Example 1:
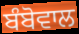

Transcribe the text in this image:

ਬੰਬੋਵਾਲ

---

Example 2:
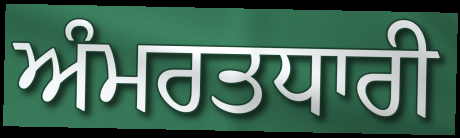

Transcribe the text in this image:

ਅੰਮਰਤਧਾਰੀ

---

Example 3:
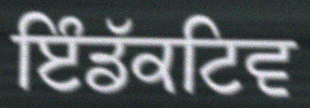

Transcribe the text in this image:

ਇੰਡੱਕਟਿਵ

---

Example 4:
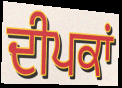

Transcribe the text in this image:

ਦੀਪਕਾਂ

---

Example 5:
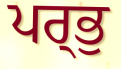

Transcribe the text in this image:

ਪਰ੍ਭੁ